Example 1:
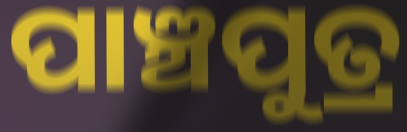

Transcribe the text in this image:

ପାଞ୍ଚପୁତ୍ର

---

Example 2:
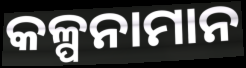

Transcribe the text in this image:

କଳ୍ପନାମାନ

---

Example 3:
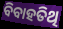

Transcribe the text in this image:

ବିବାହତିଥି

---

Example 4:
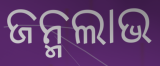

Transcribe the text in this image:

ଜନ୍ମଲାଭ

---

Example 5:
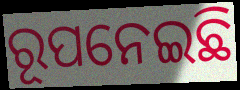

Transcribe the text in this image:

ରୂପନେଇଛି